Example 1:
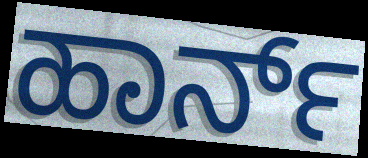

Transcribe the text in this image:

ಹಾರ್ನ್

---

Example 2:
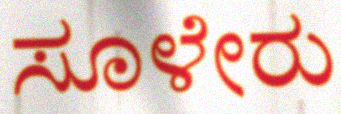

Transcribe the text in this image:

ಸೂಳೇರು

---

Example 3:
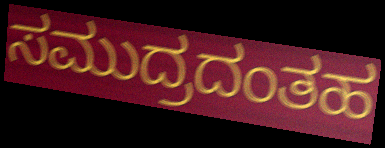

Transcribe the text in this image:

ಸಮುದ್ರದಂತಹ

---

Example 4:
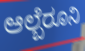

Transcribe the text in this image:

ಆಲ್ಬೆರೂನಿ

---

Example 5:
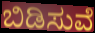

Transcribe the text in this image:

ಬಿಡಿಸುವೆ